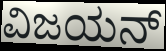
ವಿಜಯನ್